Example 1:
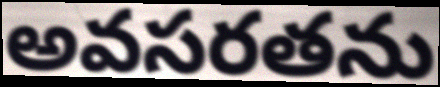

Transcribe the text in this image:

అవసరతను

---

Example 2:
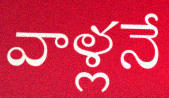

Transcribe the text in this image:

వాళ్లనే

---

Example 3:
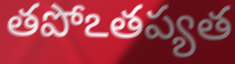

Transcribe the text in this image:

తపోఽతప్యత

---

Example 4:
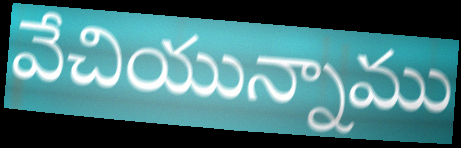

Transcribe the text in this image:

వేచియున్నాము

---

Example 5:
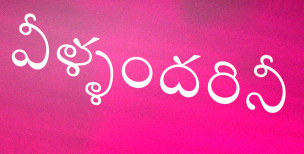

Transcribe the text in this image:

వీళ్ళందరినీ